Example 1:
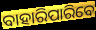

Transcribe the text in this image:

ବାହାରିପାରିବେ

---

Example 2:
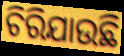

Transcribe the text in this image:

ଚିରିଯାଉଛି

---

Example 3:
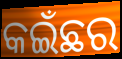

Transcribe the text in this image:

କଇଁଛର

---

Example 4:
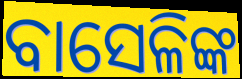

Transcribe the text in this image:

ବାସେଳିଙ୍କ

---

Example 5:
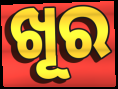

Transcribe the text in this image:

ଖୂର